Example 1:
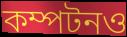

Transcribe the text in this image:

কম্পটনও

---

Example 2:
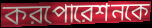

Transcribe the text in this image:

করপোরেশনকে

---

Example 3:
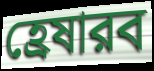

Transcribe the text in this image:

হ্রেষারব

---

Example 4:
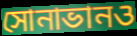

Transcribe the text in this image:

সোনাভানও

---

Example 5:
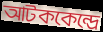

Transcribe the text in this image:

আটককেন্দ্রে